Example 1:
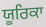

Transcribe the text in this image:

ਯੂਰਿਕਾ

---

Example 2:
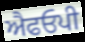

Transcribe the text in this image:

ਐਫਓਪੀ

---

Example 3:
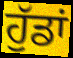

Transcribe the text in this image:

ਹੁੱਡਾਂ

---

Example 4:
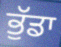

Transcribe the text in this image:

ਭੁੱਡਾ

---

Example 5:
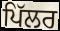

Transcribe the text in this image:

ਪਿੱਲਰ